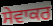
ਸੇਵਾਕਰ